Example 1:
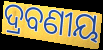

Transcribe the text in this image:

ଦ୍ରବଣୀୟ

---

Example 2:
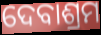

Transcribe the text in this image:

ଦେବାଶ୍ରମ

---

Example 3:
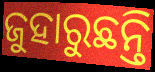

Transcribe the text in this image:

ଜୁହାରୁଛନ୍ତି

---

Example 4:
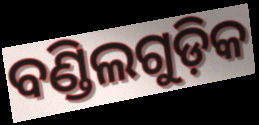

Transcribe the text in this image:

ବଣ୍ଡିଲଗୁଡ଼ିକ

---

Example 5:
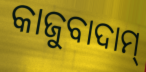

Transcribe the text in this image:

କାଜୁବାଦାମ୍